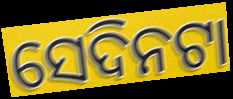
ସେଦିନଟା